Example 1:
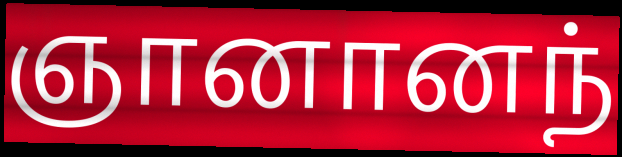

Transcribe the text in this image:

ஞானானந்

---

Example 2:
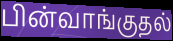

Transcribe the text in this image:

பின்வாங்குதல்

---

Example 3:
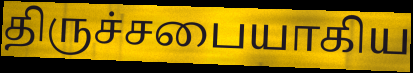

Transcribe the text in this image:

திருச்சபையாகிய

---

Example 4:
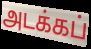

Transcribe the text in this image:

அடக்கப்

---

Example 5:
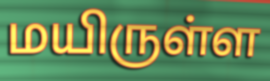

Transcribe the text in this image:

மயிருள்ள